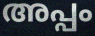
അപ്പം